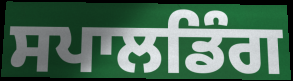
ਸਪਾਲਡਿੰਗ